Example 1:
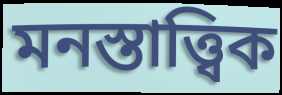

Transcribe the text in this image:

মনস্তাত্ত্বিক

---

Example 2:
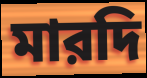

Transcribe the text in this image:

মারদি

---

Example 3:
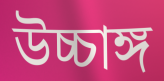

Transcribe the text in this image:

উচ্চাঙ্গ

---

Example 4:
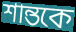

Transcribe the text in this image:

শান্তকে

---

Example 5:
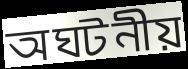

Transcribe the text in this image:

অঘটনীয়